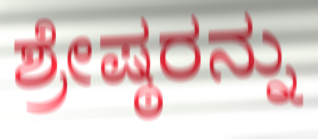
ಶ್ರೇಷ್ಠರನ್ನು